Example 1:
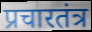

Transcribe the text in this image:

प्रचारतंत्र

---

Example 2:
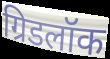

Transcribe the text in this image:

ग्रिडलॉक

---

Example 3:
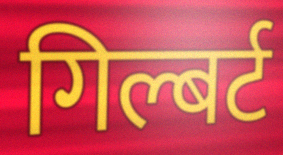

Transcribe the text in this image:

गिल्बर्ट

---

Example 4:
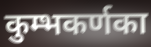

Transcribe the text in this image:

कुम्भकर्णका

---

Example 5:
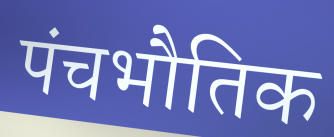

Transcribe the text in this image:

पंचभौतिक